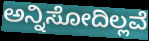
ಅನ್ನಿಸೋದಿಲ್ಲವೆ